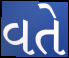
વતે